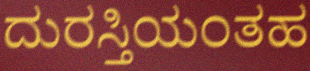
ದುರಸ್ತಿಯಂತಹ